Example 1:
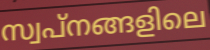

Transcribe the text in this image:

സ്വപ്നങ്ങളിലെ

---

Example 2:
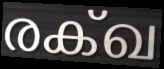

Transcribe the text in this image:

രക്ഖ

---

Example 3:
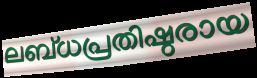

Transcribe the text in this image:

ലബ്ധപ്രതിഷ്ഠരായ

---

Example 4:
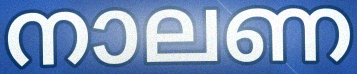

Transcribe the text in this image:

നാലണ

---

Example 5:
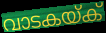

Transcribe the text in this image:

വാടകയ്ക്